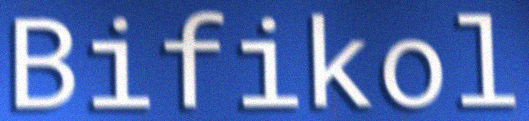
Bifikol